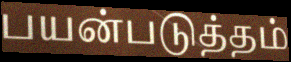
பயன்படுத்தம்